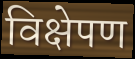
विक्षेपण